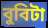
বুবিটা